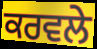
ਕਰਵਲੇ